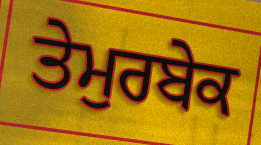
ਤੇਮੁਰਬੇਕ